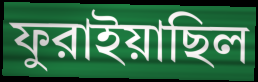
ফুরাইয়াছিল